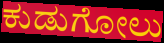
ಕುಡುಗೋಲು